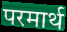
परमार्थ